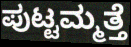
ಪುಟ್ಟಮ್ಮತ್ತೆ